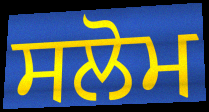
ਸਲੋਮ